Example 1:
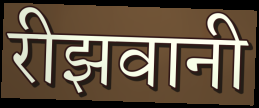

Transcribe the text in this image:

रीझवानी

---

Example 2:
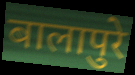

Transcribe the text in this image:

बालापुरे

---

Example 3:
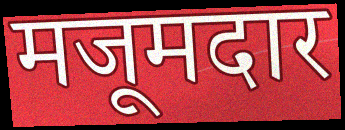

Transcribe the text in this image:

मजूमदार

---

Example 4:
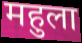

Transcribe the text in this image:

महुला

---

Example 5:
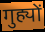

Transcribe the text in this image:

गुह्यों